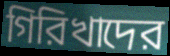
গিরিখাদের